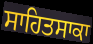
ਸਾਹਿਤਸਾਕਾ